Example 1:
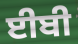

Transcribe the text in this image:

ਈਬੀ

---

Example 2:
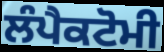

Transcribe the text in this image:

ਲੰਪੈਕਟੋਮੀ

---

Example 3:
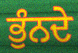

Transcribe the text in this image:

ਭੁੰਨਦੇ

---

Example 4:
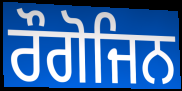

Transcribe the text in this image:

ਰੌਗੋਜਿਨ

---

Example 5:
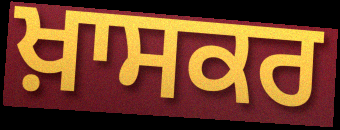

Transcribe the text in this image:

ਖ਼ਾਸਕਰ